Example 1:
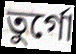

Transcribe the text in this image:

তুর্গো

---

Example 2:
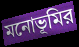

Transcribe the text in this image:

মনোভূমির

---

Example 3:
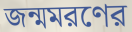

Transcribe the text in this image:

জন্মমরণের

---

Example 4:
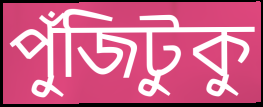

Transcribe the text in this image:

পুঁজিটুকু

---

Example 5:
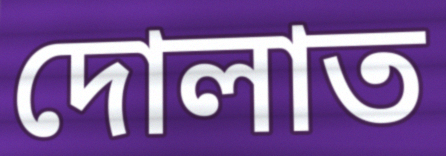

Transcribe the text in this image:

দোলাত